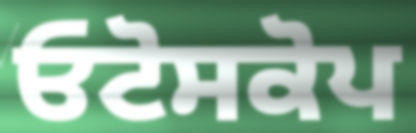
ਓਟੋਸਕੋਪ